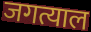
जगत्याल